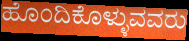
ಹೊಂದಿಕೊಳ್ಳುವವರು